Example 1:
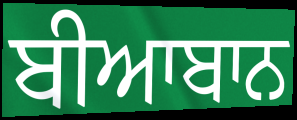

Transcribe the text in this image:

ਬੀਆਬਾਨ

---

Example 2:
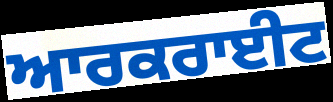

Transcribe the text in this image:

ਆਰਕਰਾਈਟ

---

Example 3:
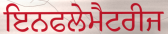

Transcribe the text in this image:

ਇਨਫਲੇਮੈਟਰੀਜ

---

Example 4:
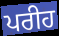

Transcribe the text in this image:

ਪਰੀਹ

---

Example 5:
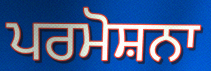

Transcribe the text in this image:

ਪਰਮੋਸ਼ਨਾ